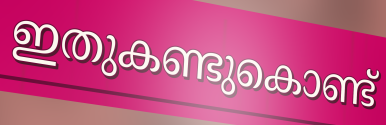
ഇതുകണ്ടുകൊണ്ട്